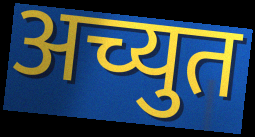
अच्‍युत